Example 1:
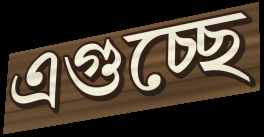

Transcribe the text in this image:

এগুচ্ছে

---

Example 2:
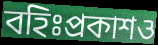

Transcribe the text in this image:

বহিঃপ্রকাশও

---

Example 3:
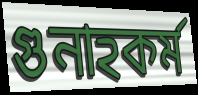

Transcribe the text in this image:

গুনাহকর্ম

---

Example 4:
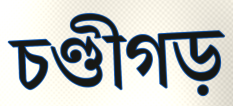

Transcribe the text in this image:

চণ্ডীগড়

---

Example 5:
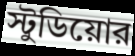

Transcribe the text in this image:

স্টুডিয়োর